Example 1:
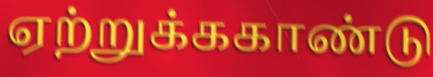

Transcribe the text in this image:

ஏற்றுக்ககாண்டு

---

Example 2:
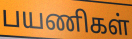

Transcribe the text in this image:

பயணிகள்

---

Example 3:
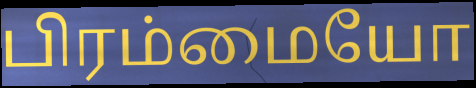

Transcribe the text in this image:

பிரம்மையோ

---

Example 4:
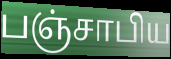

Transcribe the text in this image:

பஞ்சாபிய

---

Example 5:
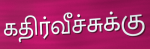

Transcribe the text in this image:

கதிர்வீச்சுக்கு